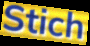
Stich